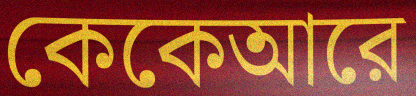
কেকেআরে